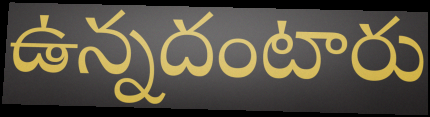
ఉన్నదంటారు